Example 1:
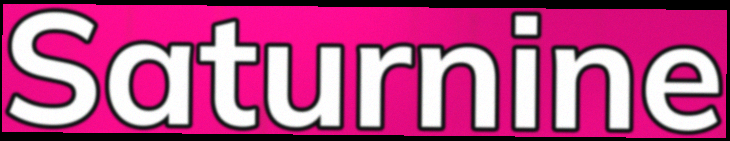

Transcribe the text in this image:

Saturnine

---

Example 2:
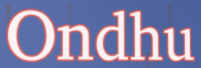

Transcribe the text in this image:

Ondhu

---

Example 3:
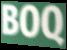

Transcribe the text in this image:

BOQ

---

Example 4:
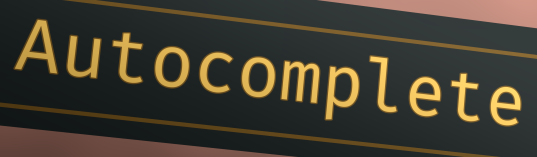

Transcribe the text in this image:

Autocomplete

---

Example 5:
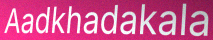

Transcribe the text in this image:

Aadkhadakala